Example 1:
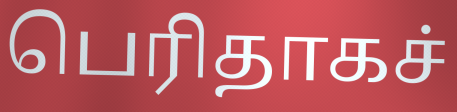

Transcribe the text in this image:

பெரிதாகச்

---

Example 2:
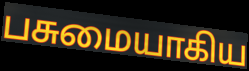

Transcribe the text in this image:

பசுமையாகிய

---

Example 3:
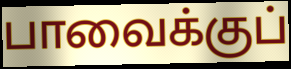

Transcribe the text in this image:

பாவைக்குப்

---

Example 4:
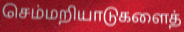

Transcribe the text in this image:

செம்மறியாடுகளைத்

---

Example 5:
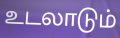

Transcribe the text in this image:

உடலாடும்